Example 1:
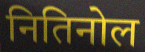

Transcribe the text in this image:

नितिनोल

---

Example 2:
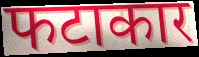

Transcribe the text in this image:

फटाकार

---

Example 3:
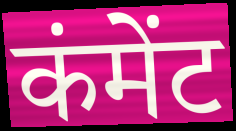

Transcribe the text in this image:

कंमेंट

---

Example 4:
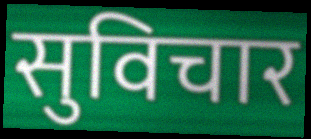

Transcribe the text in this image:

सुविचार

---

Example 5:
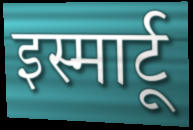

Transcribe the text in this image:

इस्मार्टू